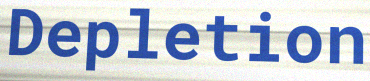
Depletion